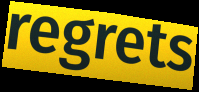
regrets